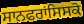
ਸਾਨਫਰਾਂਸਿਸਕੋ